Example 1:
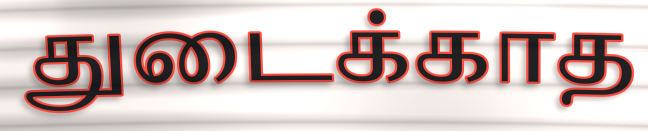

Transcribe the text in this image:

துடைக்காத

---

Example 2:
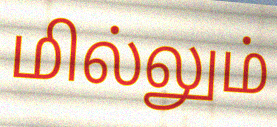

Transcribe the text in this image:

மில்லும்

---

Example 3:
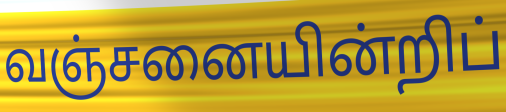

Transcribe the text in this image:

வஞ்சனையின்றிப்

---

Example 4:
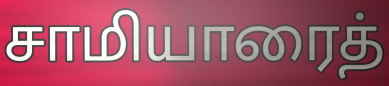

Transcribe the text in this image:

சாமியாரைத்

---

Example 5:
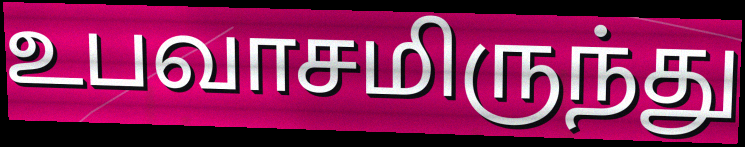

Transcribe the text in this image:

உபவாசமிருந்து